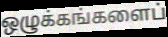
ஒழுக்கங்களைப்